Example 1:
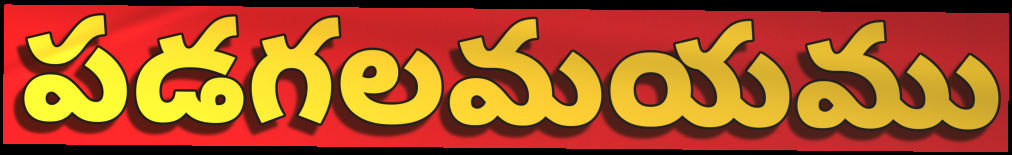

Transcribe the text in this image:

పడగలమయము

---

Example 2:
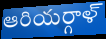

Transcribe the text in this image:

ఆరియర్గాళ్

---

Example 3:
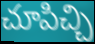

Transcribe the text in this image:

చూపిచ్చి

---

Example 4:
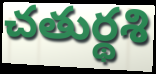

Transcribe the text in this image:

చతుర్థశి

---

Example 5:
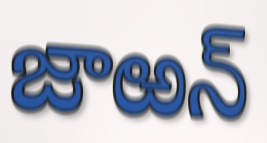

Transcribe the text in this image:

జాఱన్